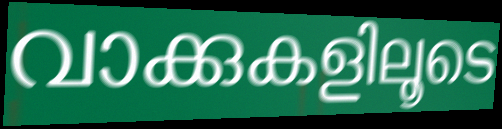
വാക്കുകളിലൂടെ